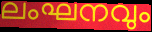
ലംഘനവും